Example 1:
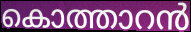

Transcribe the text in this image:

കൊത്താറൻ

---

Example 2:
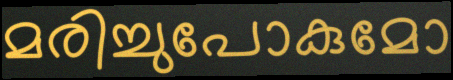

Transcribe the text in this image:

മരിച്ചുപോകുമോ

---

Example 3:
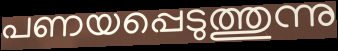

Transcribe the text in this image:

പണയപ്പെടുത്തുന്നു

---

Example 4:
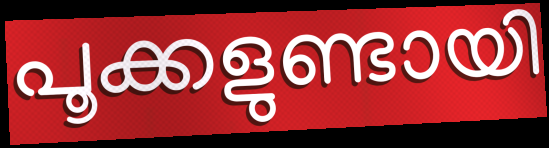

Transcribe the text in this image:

പൂക്കളുണ്ടായി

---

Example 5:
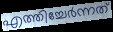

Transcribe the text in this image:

എത്തിച്ചേർന്നത്